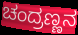
ಚಂದ್ರಣ್ಣನ